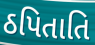
ઠપિતાતિ